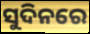
ସୁଦିନରେ